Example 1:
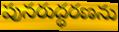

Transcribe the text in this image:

పునరుద్ధరణను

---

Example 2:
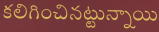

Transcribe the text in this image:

కలిగించినట్టున్నాయి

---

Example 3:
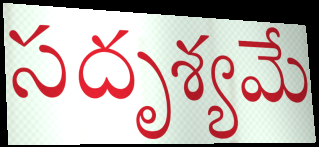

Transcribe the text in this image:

సదృశ్యమే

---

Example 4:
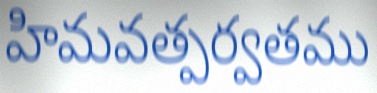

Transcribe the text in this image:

హిమవత్పర్వతము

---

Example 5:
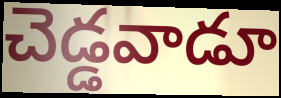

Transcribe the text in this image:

చెడ్డవాడూ